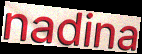
nadina